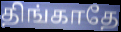
திங்காதே